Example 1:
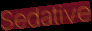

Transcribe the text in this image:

Sedative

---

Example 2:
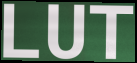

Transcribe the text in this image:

LUT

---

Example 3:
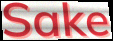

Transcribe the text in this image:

Sake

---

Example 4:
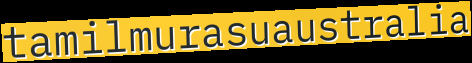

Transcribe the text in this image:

tamilmurasuaustralia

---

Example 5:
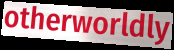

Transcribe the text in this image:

otherworldly